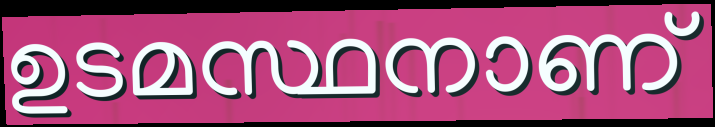
ഉടമസ്ഥനാണ്